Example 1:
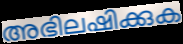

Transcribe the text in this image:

അഭിലഷിക്കുക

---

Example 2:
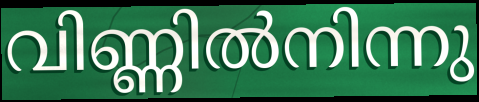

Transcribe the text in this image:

വിണ്ണിൽനിന്നു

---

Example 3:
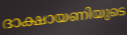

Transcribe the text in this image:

ദാക്ഷായണിയുടെ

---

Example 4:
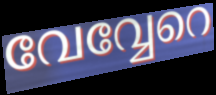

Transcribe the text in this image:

വേവ്വേറെ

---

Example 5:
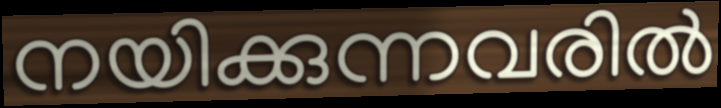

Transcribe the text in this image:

നയിക്കുന്നവരിൽ